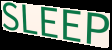
SLEEP